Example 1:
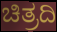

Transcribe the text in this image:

ಚಿತ್ರದಿ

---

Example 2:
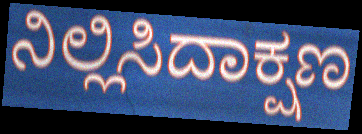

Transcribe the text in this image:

ನಿಲ್ಲಿಸಿದಾಕ್ಷಣ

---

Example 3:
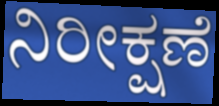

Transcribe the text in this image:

ನಿರೀಕ್ಷಣೆ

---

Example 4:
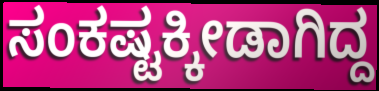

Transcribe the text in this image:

ಸಂಕಷ್ಟಕ್ಕೀಡಾಗಿದ್ದ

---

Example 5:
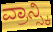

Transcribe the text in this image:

ವ್ರಾನ್ಸ್ಕಿ